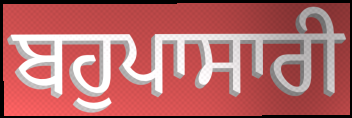
ਬਹੁਪਾਸਾਰੀ